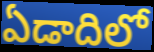
ఏడాదిలో